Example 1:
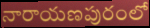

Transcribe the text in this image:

నారాయణపురంలో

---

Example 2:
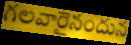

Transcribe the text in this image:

గలవారైనందున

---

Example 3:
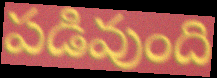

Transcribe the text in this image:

పడివుంది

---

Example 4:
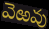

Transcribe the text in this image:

వెఱవు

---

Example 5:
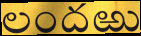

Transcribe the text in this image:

లందఱు